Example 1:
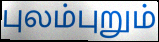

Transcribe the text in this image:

புலம்புறும்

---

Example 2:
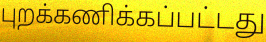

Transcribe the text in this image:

புறக்கணிக்கப்பட்டது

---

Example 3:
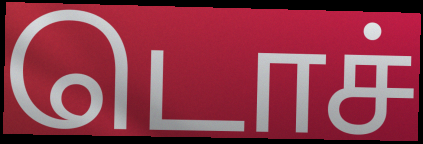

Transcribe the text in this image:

டொச்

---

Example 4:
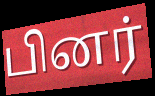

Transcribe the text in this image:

பினர்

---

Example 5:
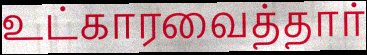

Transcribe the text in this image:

உட்காரவைத்தார்